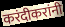
करंदीकरांनी